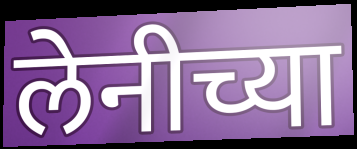
लेनीच्या